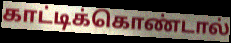
காட்டிக்கொண்டால்